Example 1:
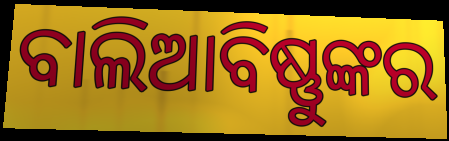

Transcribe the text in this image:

ବାଲିଆବିଷ୍ଣୁଙ୍କର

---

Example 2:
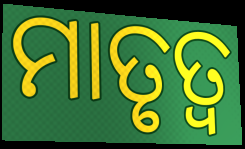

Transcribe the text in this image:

ମାତୃତ୍ୱ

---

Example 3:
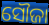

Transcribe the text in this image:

ସୌଜା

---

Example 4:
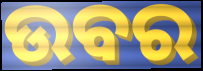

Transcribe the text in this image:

ଉବର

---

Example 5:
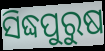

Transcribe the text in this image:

ସିଦ୍ଧପୁରୁଷ